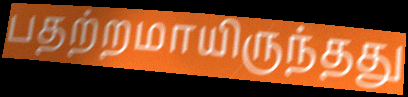
பதற்றமாயிருந்தது